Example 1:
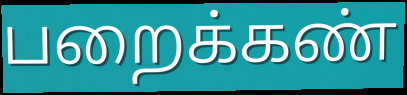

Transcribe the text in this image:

பறைக்கண்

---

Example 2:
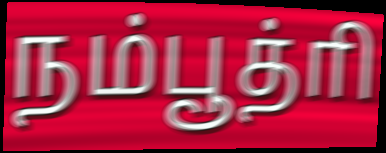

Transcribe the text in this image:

நம்பூத்ரி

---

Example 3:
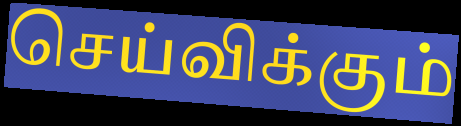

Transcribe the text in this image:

செய்விக்கும்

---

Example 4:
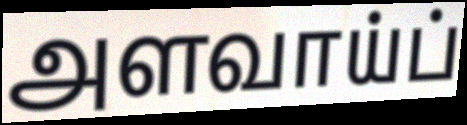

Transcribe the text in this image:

அளவாய்ப்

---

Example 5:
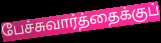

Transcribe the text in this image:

பேச்சுவார்த்தைக்குப்